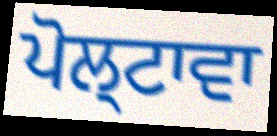
ਪੋਲ੍ਟਾਵਾ